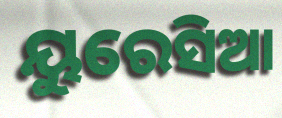
ୟୁରେସିଆ